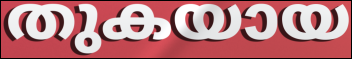
തുകയായ